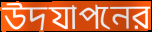
উদযাপনের